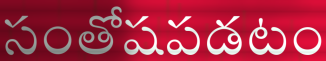
సంతోషపడటం